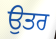
ਉਤਰ